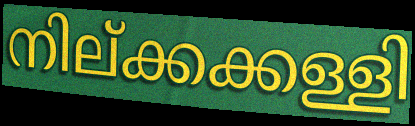
നില്ക്കക്കള്ളി